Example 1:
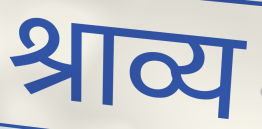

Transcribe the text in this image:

श्राव्य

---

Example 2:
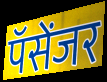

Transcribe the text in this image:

पॅसेंजर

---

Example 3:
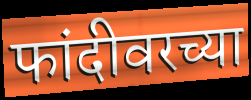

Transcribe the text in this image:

फांदीवरच्या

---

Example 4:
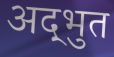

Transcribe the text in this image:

अद्‍भुत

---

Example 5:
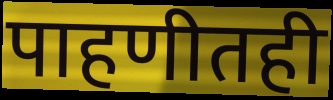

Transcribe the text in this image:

पाहणीतही